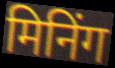
मिनिंग